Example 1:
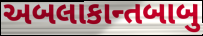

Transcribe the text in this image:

અબલાકાન્તબાબુ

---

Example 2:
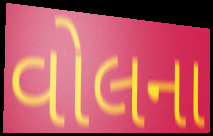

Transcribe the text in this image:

વોલના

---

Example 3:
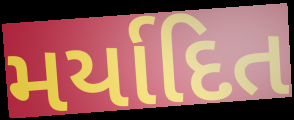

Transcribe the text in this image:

મર્યાદિત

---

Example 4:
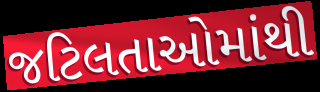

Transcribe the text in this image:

જટિલતાઓમાંથી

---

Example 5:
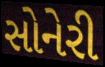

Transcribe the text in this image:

સોનેરી